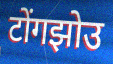
टोंगझोउ